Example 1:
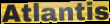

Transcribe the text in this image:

Atlantis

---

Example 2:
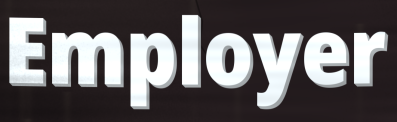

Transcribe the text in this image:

Employer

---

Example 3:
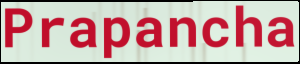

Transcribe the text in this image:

Prapancha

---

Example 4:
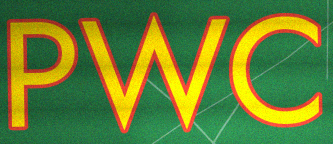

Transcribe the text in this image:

PWC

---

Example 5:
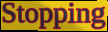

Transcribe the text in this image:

Stopping